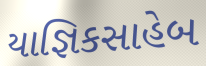
યાજ્ઞિકસાહેબ